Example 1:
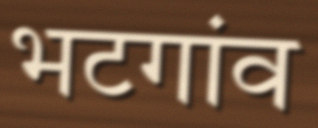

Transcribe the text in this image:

भटगांव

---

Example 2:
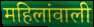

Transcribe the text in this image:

महिलांवाली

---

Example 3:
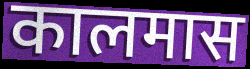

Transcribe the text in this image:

कालमास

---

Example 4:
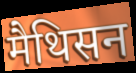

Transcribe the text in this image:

मैथिसन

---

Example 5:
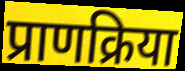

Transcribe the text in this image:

प्राणक्रिया